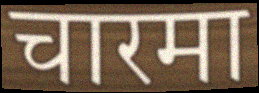
चारमा